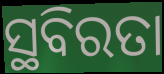
ସ୍ଥବିରତା